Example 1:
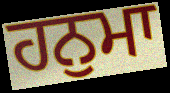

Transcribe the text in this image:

ਹਨੁਮਾ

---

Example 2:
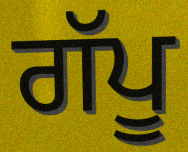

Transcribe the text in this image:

ਗੱਪੂ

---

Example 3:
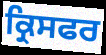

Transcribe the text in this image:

ਕ੍ਰਿਸਫਰ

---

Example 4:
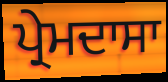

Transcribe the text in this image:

ਪ੍ਰੇਮਦਾਸਾ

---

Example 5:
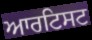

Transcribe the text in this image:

ਆਰਟਿਸਟ